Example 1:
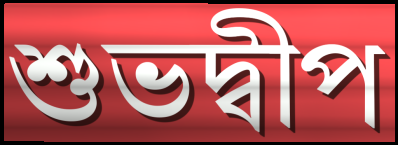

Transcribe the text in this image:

শুভদ্বীপ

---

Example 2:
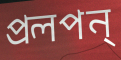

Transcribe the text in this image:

প্রলপন্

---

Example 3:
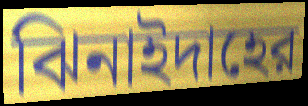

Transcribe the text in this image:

ঝিনাইদাহের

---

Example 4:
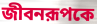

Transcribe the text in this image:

জীবনরূপকে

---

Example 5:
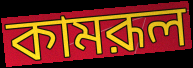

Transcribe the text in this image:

কামরূল